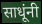
साधूंनी